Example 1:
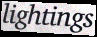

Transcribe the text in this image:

lightings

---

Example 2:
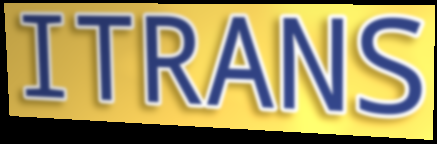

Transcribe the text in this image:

ITRANS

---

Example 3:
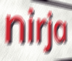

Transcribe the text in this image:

nirja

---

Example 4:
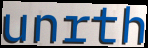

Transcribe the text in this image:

unrth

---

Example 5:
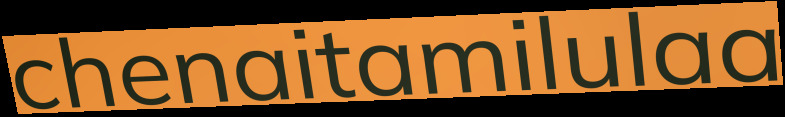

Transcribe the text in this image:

chenaitamilulaa